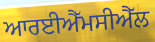
ਆਰਈਐੱਮਸੀਐੱਲ